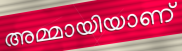
അമ്മായിയാണ്